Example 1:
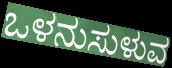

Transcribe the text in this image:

ಒಳನುಸುಳುವ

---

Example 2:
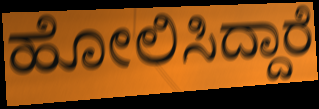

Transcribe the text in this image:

ಹೋಲಿಸಿದ್ದಾರೆ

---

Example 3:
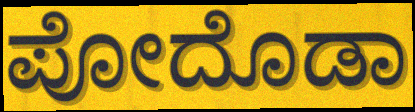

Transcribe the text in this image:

ಪೋದೊಡಾ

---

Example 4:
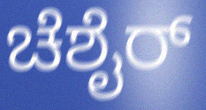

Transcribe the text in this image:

ಚೆಶೈರ್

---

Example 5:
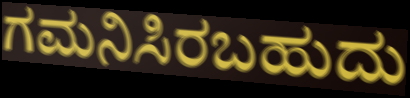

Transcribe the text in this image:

ಗಮನಿಸಿರಬಹುದು